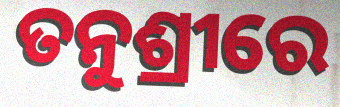
ତନୁଶ୍ରୀରେ